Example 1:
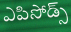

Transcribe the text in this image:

ఎపిసోడ్స్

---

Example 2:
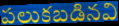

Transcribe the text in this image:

పలుకబడినవి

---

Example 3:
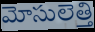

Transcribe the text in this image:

మోసులెత్తి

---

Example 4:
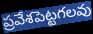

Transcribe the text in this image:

ప్రవేశపెట్టగలవు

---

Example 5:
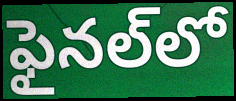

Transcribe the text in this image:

ఫైనల్‌లో